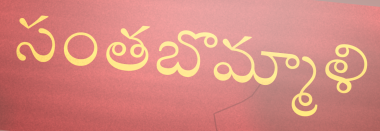
సంతబొమ్మాళి